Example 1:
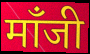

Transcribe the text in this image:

मॉंजी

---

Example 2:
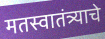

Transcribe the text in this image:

मतस्वातंत्र्याचे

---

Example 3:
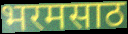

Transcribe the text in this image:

भरमसाठ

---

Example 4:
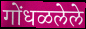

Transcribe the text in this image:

गोंधळलेले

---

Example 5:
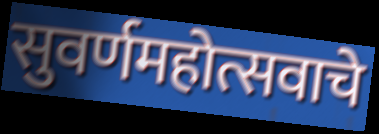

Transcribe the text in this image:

सुवर्णमहोत्सवाचे